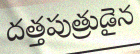
దత్తపుత్రుడైన